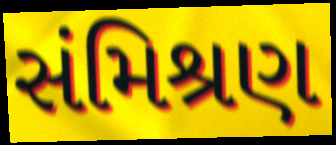
સંમિશ્રણ